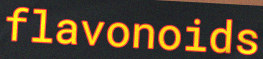
flavonoids